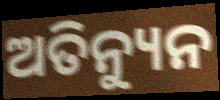
ଅତିନ୍ୟୁନ